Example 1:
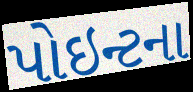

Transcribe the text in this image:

પોઇન્ટના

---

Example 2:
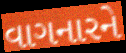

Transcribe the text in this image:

વાગનારને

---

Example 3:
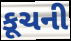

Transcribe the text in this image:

કૂચની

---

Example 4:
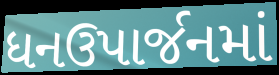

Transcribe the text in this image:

ધનઉપાર્જનમાં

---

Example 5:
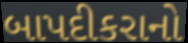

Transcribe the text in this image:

બાપદીકરાનો